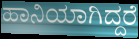
ಹಾನಿಯಾಗಿದ್ದರೆ